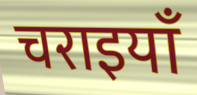
चराइयाँ